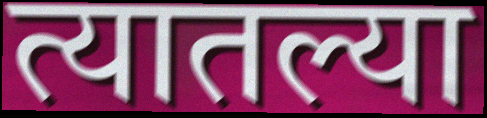
त्यातल्या